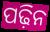
ପଢ଼ିନ